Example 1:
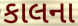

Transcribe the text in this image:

કાલના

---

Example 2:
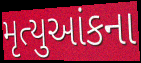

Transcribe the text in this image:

મૃત્યુઆંકના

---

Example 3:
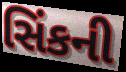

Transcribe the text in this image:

સિંકની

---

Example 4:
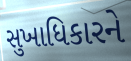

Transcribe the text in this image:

સુખાધિકારને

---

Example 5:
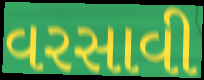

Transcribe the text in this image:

વરસાવી